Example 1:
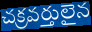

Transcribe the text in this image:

చక్రవర్తులైన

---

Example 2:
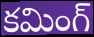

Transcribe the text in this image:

కమింగ్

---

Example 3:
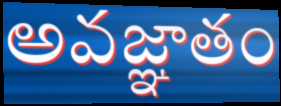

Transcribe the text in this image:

అవజ్ఞాతం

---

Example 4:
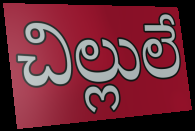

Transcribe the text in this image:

చిల్లులే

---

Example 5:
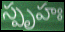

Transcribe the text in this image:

స్పృహః